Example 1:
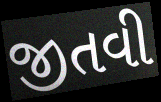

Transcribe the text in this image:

જીતવી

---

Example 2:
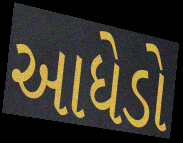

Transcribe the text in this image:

આધેડો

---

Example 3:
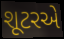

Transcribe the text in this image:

શૂટરએ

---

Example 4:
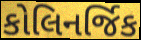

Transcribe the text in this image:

કોલિનર્જિક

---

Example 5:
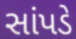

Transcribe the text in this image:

સાંપડે